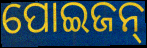
ପୋଇଜନ୍